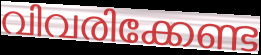
വിവരിക്കേണ്ട